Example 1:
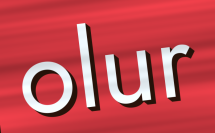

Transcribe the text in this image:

olur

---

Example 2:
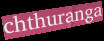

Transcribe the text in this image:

chthuranga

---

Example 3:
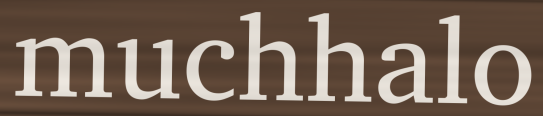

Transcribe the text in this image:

muchhalo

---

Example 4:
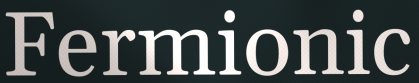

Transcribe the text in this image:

Fermionic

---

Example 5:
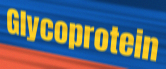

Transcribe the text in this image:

Glycoprotein